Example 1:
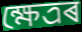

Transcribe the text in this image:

ক্ষেত্ৰৰ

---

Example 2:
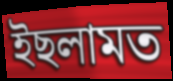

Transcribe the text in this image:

ইছলামত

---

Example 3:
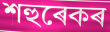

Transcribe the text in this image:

শহুৰেকৰ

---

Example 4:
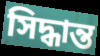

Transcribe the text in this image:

সিদ্ধান্ত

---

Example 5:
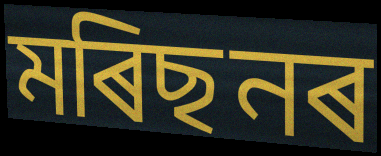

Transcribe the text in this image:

মৰিছনৰ